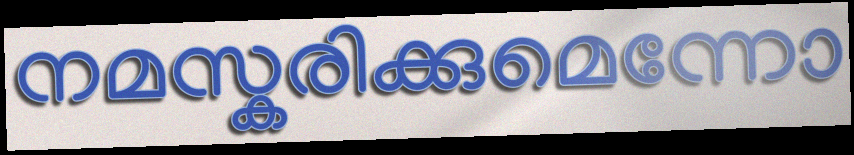
നമസ്കരിക്കുമെന്നോ